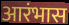
आरंभास